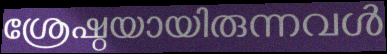
ശ്രേഷ്ഠയായിരുന്നവൾ